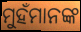
ମୁହଁମାନଙ୍କ